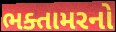
ભક્તામરનો